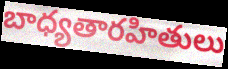
బాధ్యతారహితులు